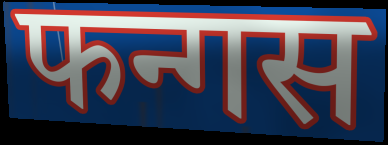
फन्गस